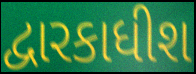
દ્વારકાધીશ